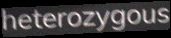
heterozygous